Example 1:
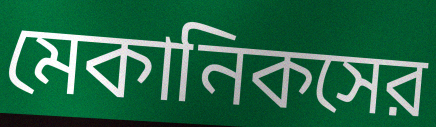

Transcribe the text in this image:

মেকানিকসের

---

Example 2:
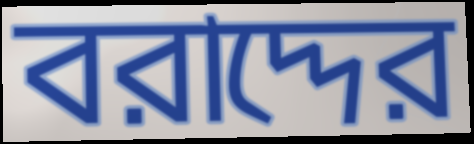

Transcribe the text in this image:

বরাদ্দের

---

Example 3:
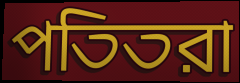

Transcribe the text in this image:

পতিতরা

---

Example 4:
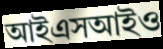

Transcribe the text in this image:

আইএসআইও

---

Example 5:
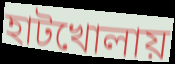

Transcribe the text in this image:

হাটখোলায়